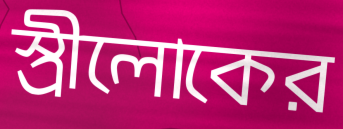
স্ত্রীলোকের